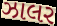
ઝાલર